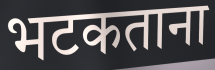
भटकताना